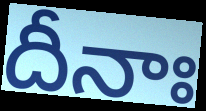
దీనాః